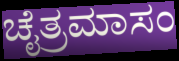
ಚೈತ್ರಮಾಸಂ